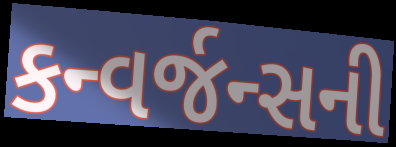
કન્વર્જન્સની